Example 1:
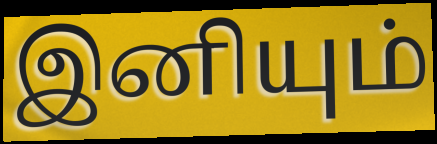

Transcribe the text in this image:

இனியும்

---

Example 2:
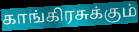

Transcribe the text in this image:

காங்கிரசுக்கும்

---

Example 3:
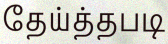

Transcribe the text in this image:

தேய்த்தபடி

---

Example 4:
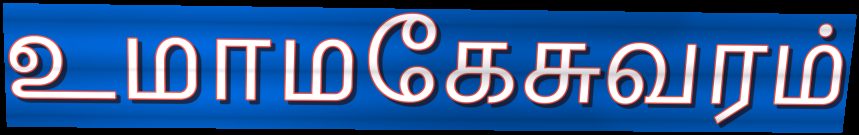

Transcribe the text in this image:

உமாமகேசுவரம்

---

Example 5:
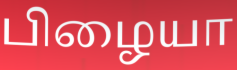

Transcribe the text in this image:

பிழையா